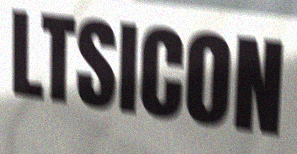
LTSICON